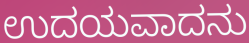
ಉದಯವಾದನು